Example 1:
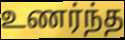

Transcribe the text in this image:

உணர்ந்த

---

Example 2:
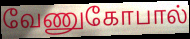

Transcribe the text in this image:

வேணுகோபால்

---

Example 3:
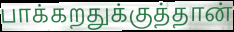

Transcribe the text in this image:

பாக்கறதுக்குத்தான்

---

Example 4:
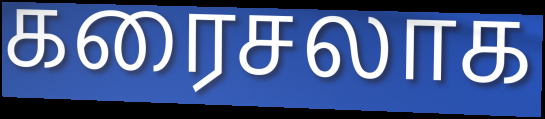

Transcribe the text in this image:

கரைசலாக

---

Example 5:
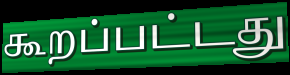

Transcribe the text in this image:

கூறப்பட்டது